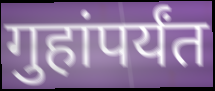
गुहांपर्यंत